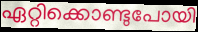
ഏറ്റിക്കൊണ്ടുപോയി